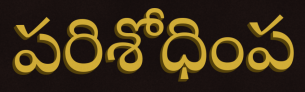
పరిశోధింప